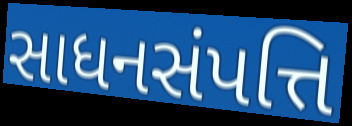
સાધનસંપત્તિ